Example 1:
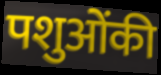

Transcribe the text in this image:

पशुओंकी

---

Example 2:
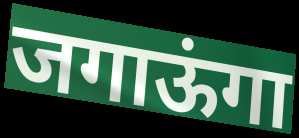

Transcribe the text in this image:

जगाऊंगा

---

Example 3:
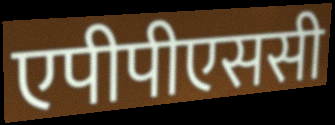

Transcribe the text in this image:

एपीपीएससी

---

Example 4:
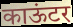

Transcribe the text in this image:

काऊंटर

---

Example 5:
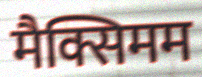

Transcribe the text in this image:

मैक्सिमम